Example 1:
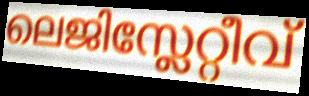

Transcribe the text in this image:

ലെജിസ്ലേറ്റീവ്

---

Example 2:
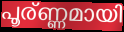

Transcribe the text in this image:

പൂര്ണ്ണമായി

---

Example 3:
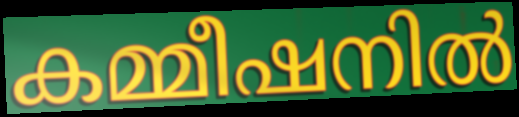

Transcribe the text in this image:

കമ്മീഷനിൽ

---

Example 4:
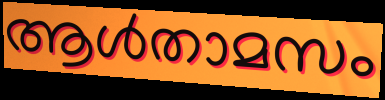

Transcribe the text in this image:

ആൾതാമസം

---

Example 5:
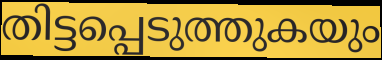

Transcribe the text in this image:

തിട്ടപ്പെടുത്തുകയും